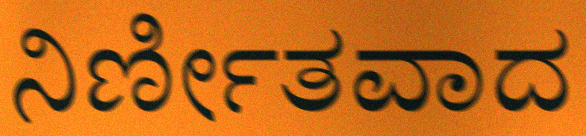
ನಿರ್ಣೀತವಾದ